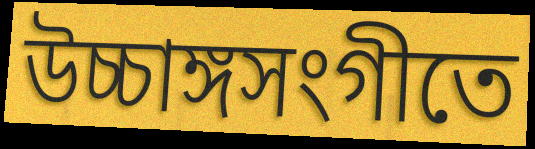
উচ্চাঙ্গসংগীতে